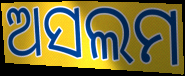
ଅସଲମ